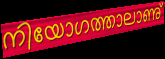
നിയോഗത്താലാണു്